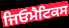
ਜਿਓਮੈਟਿਕਸ